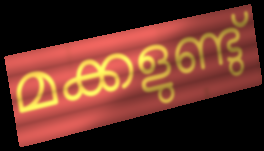
മക്കളുണ്ടു്